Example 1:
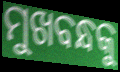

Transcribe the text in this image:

ମୁଖବନ୍ଧକୁ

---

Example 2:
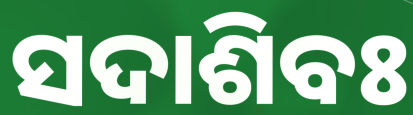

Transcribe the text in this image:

ସଦାଶିବଃ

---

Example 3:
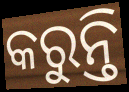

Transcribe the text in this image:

କରୁନ୍ତି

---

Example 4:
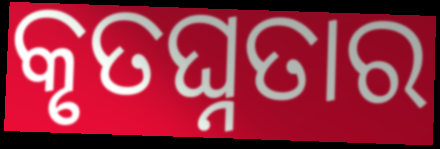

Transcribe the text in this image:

କୃତଘ୍ନତାର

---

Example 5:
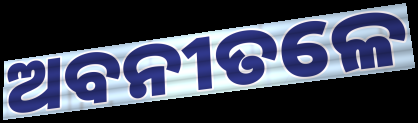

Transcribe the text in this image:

ଅବନୀତଳେ